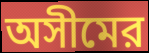
অসীমের